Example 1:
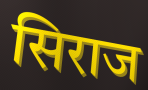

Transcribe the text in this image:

सिराज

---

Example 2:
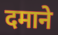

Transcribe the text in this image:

दमाने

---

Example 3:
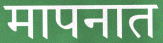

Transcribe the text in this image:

मापनात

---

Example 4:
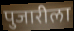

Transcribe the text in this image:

पुजारीला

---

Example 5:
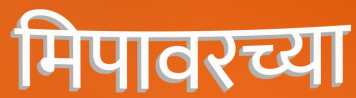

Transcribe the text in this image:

मिपावरच्या